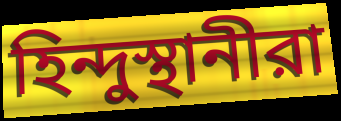
হিন্দুস্থানীরা